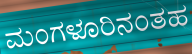
ಮಂಗಳೂರಿನಂತಹ